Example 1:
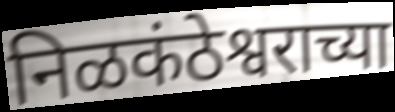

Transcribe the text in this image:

निळकंठेश्वराच्या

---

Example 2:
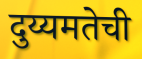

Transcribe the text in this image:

दुय्यमतेची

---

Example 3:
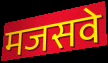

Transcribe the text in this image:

मजसवे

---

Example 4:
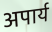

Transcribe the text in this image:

अपार्य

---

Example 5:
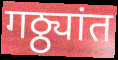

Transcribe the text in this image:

गठ्ठ्यांत